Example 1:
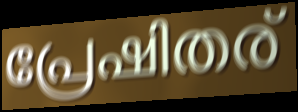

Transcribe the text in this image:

പ്രേഷിതര്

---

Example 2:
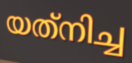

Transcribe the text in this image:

യത്‌നിച്ച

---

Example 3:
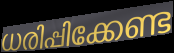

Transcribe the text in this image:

ധരിപ്പിക്കേണ്ട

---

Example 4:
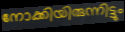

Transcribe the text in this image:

നോക്കിയിരുന്നിട്ടും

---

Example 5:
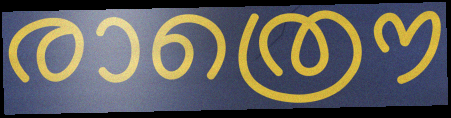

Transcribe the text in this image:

രാത്രൌ